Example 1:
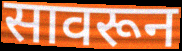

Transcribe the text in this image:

सावरून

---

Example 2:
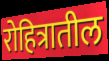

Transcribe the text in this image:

रोहित्रातील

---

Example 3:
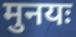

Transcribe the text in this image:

मुनयः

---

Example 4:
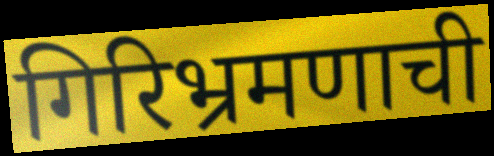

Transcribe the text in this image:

गिरिभ्रमणाची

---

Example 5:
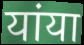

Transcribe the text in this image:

यांया